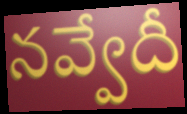
నవ్వేదీ